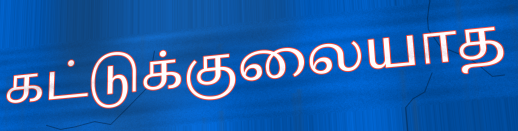
கட்டுக்குலையாத